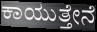
ಕಾಯುತ್ತೇನೆ